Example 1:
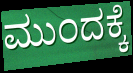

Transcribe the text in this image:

ಮುಂದಕ್ಕೆ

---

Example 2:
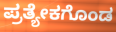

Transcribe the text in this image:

ಪ್ರತ್ಯೇಕಗೊಂಡ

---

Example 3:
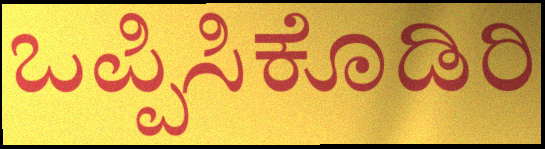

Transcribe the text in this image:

ಒಪ್ಪಿಸಿಕೊಡಿರಿ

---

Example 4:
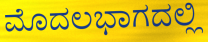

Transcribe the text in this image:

ಮೊದಲಭಾಗದಲ್ಲಿ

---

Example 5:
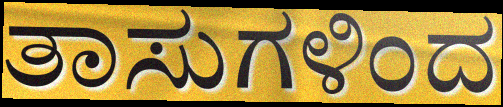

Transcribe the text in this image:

ತಾಸುಗಳಿಂದ